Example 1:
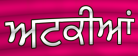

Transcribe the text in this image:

ਅਟਕੀਆਂ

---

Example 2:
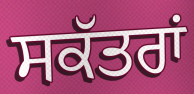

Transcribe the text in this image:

ਸਕੱਤਰਾਂ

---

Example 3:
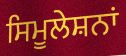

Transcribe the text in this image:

ਸਿਮੂਲੇਸ਼ਨਾਂ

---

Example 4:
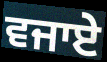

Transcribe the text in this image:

ਵਜਾਏ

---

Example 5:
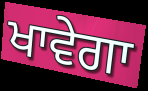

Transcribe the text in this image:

ਖਾਵੇਗਾ